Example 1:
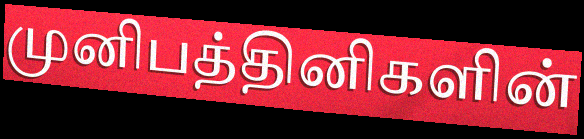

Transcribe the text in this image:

முனிபத்தினிகளின்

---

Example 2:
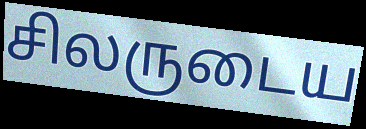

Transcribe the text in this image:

சிலருடைய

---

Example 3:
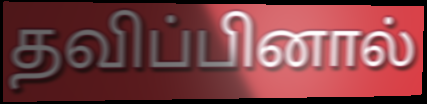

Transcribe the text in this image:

தவிப்பினால்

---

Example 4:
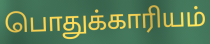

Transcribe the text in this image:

பொதுக்காரியம்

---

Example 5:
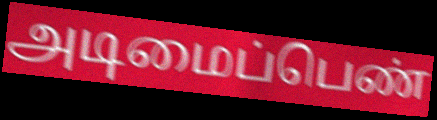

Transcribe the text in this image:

அடிமைப்பெண்